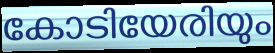
കോടിയേരിയും